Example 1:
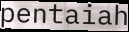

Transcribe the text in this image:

pentaiah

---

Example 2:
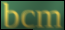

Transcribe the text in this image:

bcm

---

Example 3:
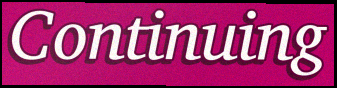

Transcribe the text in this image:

Continuing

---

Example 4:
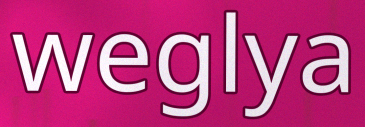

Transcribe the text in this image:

weglya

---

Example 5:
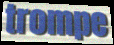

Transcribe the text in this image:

trompe